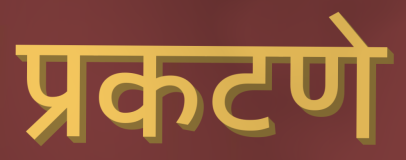
प्रकटणे